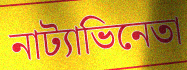
নাট্যাভিনেতা